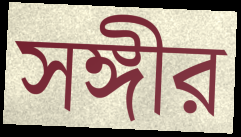
সঙ্গীর